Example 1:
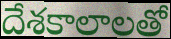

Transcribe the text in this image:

దేశకాలాలతో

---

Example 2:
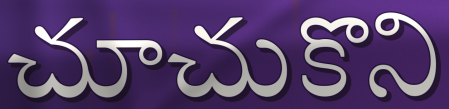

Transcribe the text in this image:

చూచుకొని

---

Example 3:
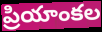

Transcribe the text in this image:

ప్రియాంకల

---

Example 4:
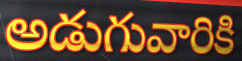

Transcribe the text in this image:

అడుగువారికి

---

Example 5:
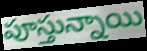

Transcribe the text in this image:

పూస్తున్నాయి